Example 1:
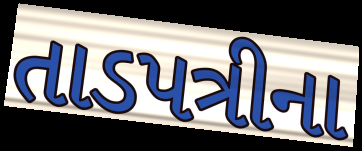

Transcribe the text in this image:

તાડપત્રીના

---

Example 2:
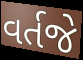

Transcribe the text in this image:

વર્તજે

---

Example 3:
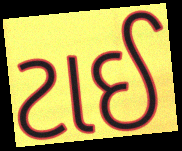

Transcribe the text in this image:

ટાઈ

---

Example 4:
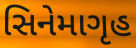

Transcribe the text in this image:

સિનેમાગૃહ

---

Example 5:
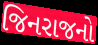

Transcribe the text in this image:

જિનરાજનો